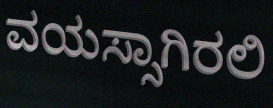
ವಯಸ್ಸಾಗಿರಲಿ